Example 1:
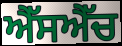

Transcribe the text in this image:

ਐੱਸਐੱਚ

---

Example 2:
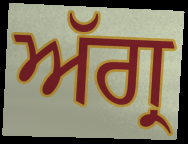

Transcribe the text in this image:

ਅੱਗ੍ਰ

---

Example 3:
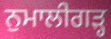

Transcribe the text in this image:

ਨੁਮਾਲੀਗੜ੍ਹ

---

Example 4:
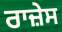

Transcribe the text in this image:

ਰਾਜ਼ੇਸ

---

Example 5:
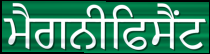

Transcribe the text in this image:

ਮੈਗਨੀਫਿਸੈਂਟ